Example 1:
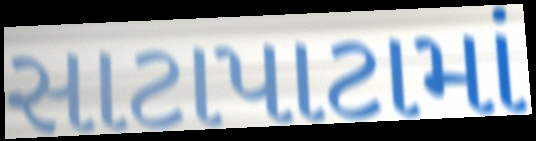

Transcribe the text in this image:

સાટાપાટામાં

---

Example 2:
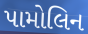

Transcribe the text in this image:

પામોલિન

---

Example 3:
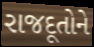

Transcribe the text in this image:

રાજદૂતોને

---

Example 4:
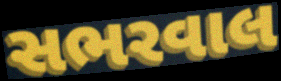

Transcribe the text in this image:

સભરવાલ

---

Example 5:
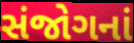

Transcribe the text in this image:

સંજોગનાં